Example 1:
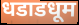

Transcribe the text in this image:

धडाडधूम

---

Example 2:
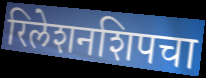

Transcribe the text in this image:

रिलेशनशिपचा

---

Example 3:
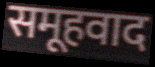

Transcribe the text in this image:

समूहवाद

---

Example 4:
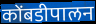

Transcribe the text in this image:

कोंबडीपालन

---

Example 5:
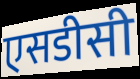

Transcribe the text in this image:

एसडीसी